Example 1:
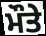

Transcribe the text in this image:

ਮੌਤੇ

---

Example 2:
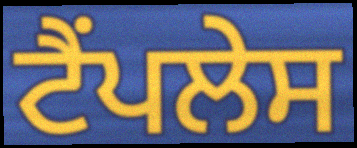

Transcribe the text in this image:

ਟੈਂਪਲੇਸ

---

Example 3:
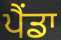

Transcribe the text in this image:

ਪੈਂਡਾ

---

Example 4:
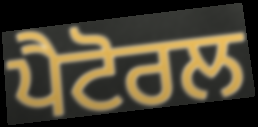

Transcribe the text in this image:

ਪੈਟੋਰਲ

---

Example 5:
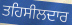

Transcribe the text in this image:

ਤਹਿਸੀਲਦਾਰ